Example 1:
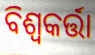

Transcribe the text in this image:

ବିଶ୍ୱକର୍ତ୍ତା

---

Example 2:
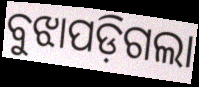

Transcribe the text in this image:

ବୁଝାପଡ଼ିଗଲା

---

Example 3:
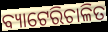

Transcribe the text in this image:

ବ୍ୟାଟେରିଚାଳିତ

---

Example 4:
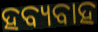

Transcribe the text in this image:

ହବ୍ୟବାହ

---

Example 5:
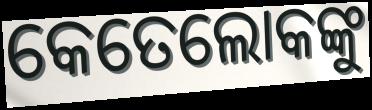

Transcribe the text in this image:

କେତେଲୋକଙ୍କୁ